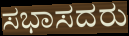
ಸಭಾಸದರು